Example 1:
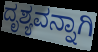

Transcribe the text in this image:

ದೃಶ್ಯವನ್ನಾಗಿ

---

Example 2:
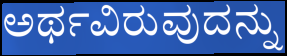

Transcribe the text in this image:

ಅರ್ಥವಿರುವುದನ್ನು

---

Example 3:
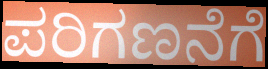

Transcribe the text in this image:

ಪರಿಗಣನೆಗೆ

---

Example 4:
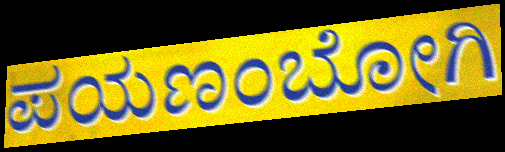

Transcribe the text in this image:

ಪಯಣಂಬೋಗಿ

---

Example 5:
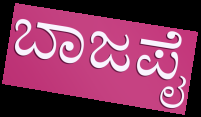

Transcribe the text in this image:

ಬಾಜಪೈ